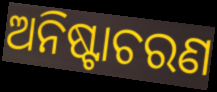
ଅନିଷ୍ଟାଚରଣ